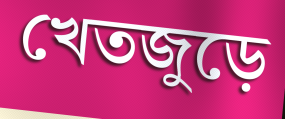
খেতজুড়ে